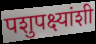
पशुपक्ष्यांशी